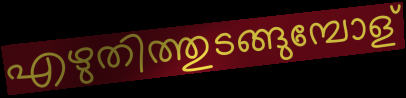
എഴുതിത്തുടങ്ങുമ്പോള്